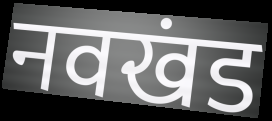
नवखंड